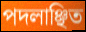
পদলাঞ্ছিত